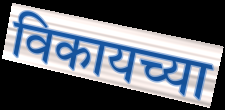
विकायच्या